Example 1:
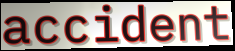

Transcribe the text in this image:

accident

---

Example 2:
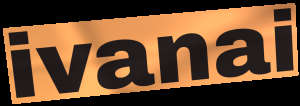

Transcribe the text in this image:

ivanai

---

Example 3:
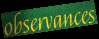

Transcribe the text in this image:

observances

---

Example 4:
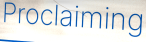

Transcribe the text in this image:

Proclaiming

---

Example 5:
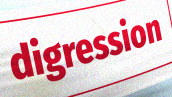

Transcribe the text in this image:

digression